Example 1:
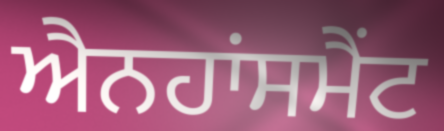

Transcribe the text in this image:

ਐਨਹਾਂਸਮੈਂਟ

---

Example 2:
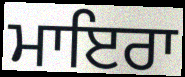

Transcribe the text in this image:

ਮਾਇਰਾ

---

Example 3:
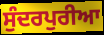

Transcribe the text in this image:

ਸੁੰਦਰਪੁਰੀਆ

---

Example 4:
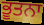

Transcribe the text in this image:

ਭੂਤਨਾ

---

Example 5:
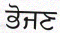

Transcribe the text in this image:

ਭੋਜਣ